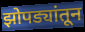
झोपड्यांतून